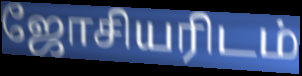
ஜோசியரிடம்